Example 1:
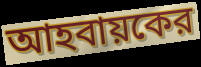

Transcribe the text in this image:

আহবায়কের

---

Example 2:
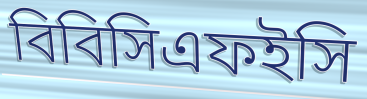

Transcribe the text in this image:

বিবিসিএফইসি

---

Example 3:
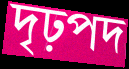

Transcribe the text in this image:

দৃঢ়পদ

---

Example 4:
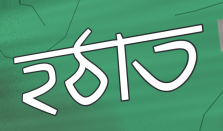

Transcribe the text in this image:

হঠাত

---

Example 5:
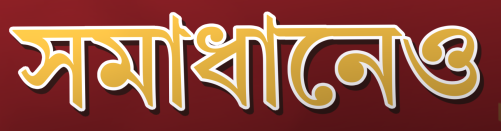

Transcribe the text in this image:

সমাধানেও